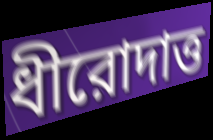
ধীরোদাত্ত